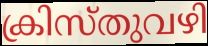
ക്രിസ്തുവഴി